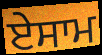
ਏਸਾਮ